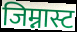
जिम्नास्ट